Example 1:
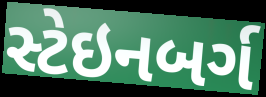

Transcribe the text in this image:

સ્ટેઇનબર્ગ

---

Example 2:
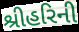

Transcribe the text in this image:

શ્રીહરિની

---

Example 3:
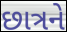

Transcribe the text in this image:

છાત્રને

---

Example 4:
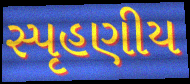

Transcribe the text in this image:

સ્પૃહણીય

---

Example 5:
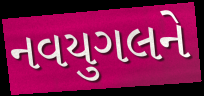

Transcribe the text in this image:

નવયુગલને